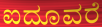
ಐದೂವರೆ